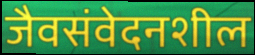
जैवसंवेदनशील